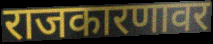
राजकारणावर